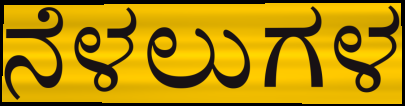
ನೆಳಲುಗಳ